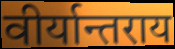
वीर्यान्तराय